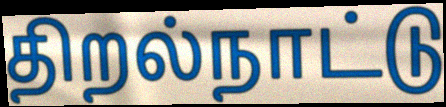
திறல்நாட்டு